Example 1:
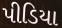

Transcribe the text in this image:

પીડિયા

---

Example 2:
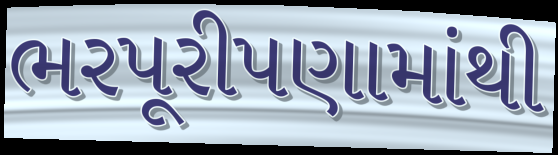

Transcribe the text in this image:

ભરપૂરીપણામાંથી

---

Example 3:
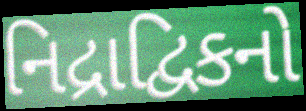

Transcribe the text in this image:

નિદ્રાદ્વિકનો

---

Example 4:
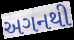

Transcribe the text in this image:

અગનથી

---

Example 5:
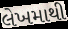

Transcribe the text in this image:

લેખમાથી